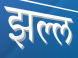
झल्ल